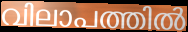
വിലാപത്തിൽ